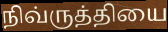
நிவ்ருத்தியை